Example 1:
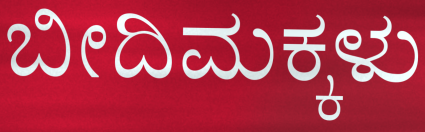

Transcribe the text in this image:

ಬೀದಿಮಕ್ಕಳು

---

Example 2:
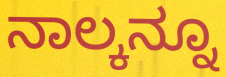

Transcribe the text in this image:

ನಾಲ್ಕನ್ನೂ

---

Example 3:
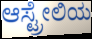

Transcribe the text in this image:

ಆಸ್ಟ್ರೇಲಿಯ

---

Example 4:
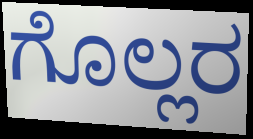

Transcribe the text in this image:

ಗೊಲ್ಲರ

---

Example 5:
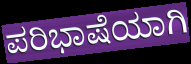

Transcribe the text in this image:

ಪರಿಭಾಷೆಯಾಗಿ